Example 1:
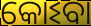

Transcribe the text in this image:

କୋଽବା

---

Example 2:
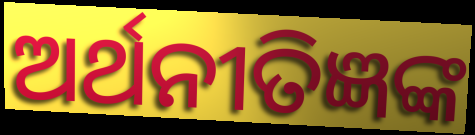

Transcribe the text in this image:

ଅର୍ଥନୀତିଜ୍ଞଙ୍କ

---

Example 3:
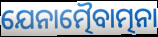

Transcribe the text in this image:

ଯେନାତ୍ମୈବାତ୍ମନା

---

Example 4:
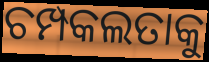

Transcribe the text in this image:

ଚମ୍ପକଲତାକୁ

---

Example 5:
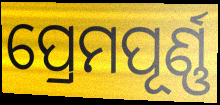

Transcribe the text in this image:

ପ୍ରେମପୂର୍ଣ୍ଣ